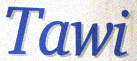
Tawi